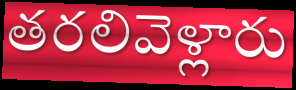
తరలివెళ్లారు